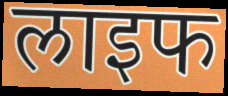
लाइफ